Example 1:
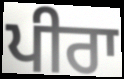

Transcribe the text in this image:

ਪੀਰਾ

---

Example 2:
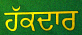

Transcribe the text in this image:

ਹੱਕਦਾਰ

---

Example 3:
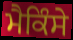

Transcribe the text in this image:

ਮੈਕਿੰਸੇ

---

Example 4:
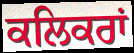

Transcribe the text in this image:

ਕਲਿਕਰਾਂ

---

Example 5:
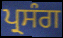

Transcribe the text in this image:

ਪ੍ਰਸੰਗ